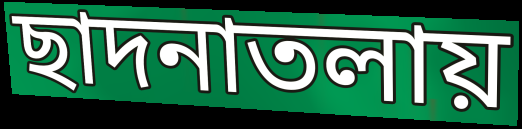
ছাদনাতলায়